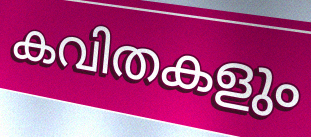
കവിതകളും